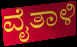
ವೈತಾಳಿ